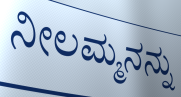
ನೀಲಮ್ಮನನ್ನು